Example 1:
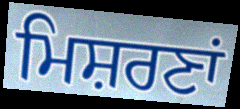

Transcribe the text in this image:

ਮਿਸ਼ਰਣਾਂ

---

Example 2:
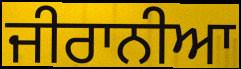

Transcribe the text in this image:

ਜੀਰਾਨੀਆ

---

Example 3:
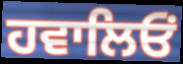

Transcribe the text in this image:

ਹਵਾਲਿਓਂ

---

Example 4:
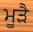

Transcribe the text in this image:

ਮੂੜੈ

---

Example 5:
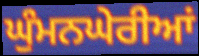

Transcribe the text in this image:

ਘੁੰਮਨਘੇਰੀਆਂ